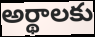
అర్థాలకు